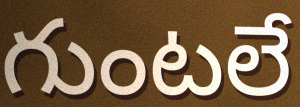
గుంటలే